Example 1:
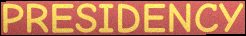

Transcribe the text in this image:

PRESIDENCY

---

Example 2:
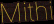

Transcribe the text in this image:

Mithi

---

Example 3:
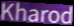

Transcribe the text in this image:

Kharod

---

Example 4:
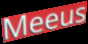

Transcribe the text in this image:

Meeus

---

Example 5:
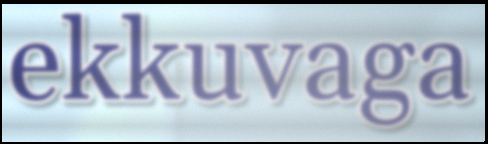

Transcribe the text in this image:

ekkuvaga